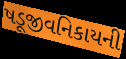
ષડૂજીવનિકાયની